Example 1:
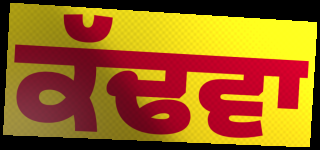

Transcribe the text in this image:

ਕੱਢਵਾ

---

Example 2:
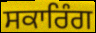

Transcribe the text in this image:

ਸਕਾਰਿੰਗ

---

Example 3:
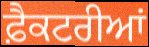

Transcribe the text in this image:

ਫ਼ੈਕਟਰੀਆਂ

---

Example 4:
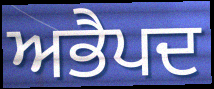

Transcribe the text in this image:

ਅਭੈਪਦ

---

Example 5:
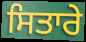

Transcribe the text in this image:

ਸਿਤਾਰੇ